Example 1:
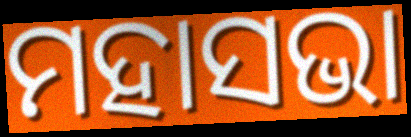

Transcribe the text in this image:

ମହାସଭା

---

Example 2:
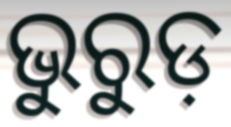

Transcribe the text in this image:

ଭୁରୁଡ଼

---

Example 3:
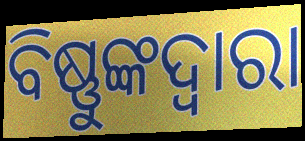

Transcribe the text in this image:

ବିଷ୍ଣୁଙ୍କଦ୍ୱାରା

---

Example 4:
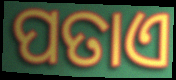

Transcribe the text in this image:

ପତାଏ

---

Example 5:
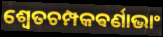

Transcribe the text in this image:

ଶ୍ଵେତଚମ୍ପକଵର୍ଣାଭାଂ